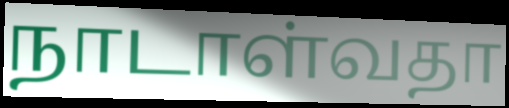
நாடாள்வதா